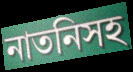
নাতনিসহ